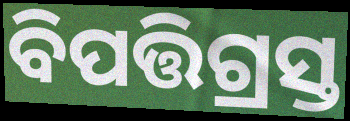
ବିପତ୍ତିଗ୍ରସ୍ତ